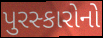
પુરસ્કારોનો